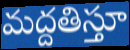
మద్దతిస్తూ